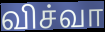
விச்வா